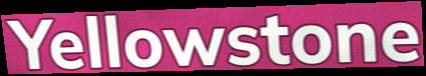
Yellowstone